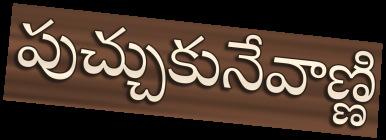
పుచ్చుకునేవాణ్ణి